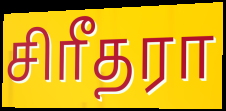
சிரீதரா